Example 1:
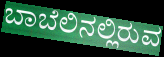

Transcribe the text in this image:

ಬಾಬೆಲಿನಲ್ಲಿರುವ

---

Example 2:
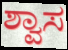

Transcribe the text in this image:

ಶ್ವಾಸ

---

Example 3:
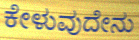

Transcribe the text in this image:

ಕೇಳುವುದೇನು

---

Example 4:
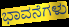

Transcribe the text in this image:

ಭಾವನೆಗಳು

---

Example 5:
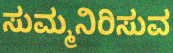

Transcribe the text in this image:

ಸುಮ್ಮನಿರಿಸುವ